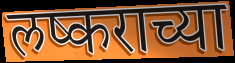
लष्कराच्या